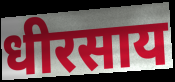
धीरसाय